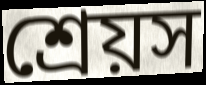
শ্রেয়স